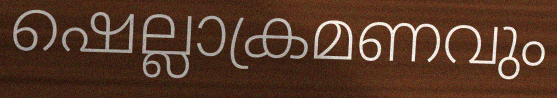
ഷെല്ലാക്രമണവും